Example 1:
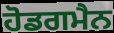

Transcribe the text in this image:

ਹੋਡਗਮੈਨ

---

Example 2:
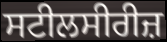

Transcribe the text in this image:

ਸਟੀਲਸੀਰੀਜ਼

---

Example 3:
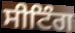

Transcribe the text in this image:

ਸੀਟਿੰਗ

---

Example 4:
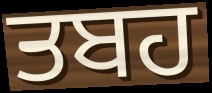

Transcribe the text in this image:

ਤਬਹ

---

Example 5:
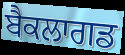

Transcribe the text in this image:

ਬੈਕਲਾਗਡ